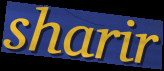
sharir